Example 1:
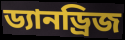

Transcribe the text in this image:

ড্যানড্রিজ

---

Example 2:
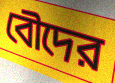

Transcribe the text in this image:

বৌদের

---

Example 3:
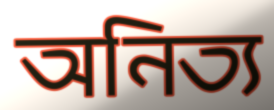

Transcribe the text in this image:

অনিত্য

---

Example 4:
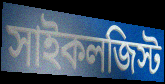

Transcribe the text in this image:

সাইকলজিস্ট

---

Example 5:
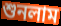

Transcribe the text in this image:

শুনলাম